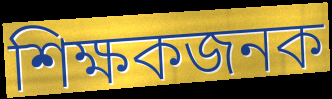
শিক্ষকজনক